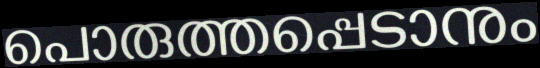
പൊരുത്തപ്പെടാനും